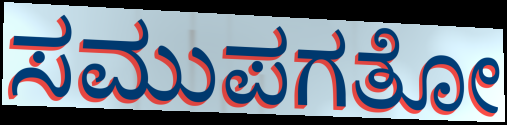
ಸಮುಪಗತೋ